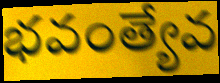
భవంత్యేవ